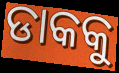
ଡାକକୁ